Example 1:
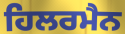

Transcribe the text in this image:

ਹਿਲਰਮੈਨ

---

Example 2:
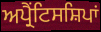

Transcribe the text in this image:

ਅਪ੍ਰੈਂਟਿਸਸ਼ਿਪਾਂ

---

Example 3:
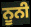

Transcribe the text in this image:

ਨੂਨੀ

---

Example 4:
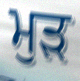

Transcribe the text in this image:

ਮੁੜ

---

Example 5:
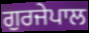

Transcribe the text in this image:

ਗੁਰਜੇਪਾਲ